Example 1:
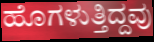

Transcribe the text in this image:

ಹೊಗಳುತ್ತಿದ್ದವು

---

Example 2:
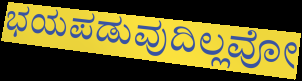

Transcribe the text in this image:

ಭಯಪಡುವುದಿಲ್ಲವೋ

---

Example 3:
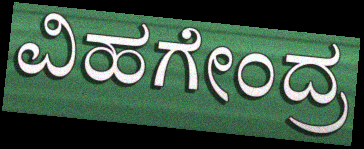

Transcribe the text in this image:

ವಿಹಗೇಂದ್ರ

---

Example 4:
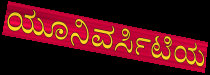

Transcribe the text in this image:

ಯೂನಿವರ್ಸಿಟಿಯ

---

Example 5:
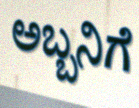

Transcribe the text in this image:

ಅಬ್ಬನಿಗೆ